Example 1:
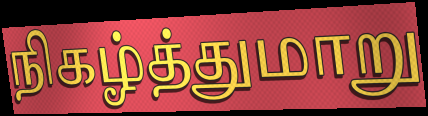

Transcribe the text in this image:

நிகழ்த்துமாறு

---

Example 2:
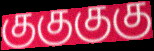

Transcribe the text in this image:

குகுகுகு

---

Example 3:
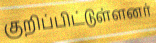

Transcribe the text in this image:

குறிப்பிட்டுள்ளனர்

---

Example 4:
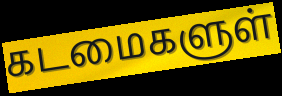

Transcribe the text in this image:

கடமைகளுள்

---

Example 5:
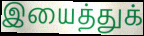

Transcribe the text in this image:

இயைத்துக்